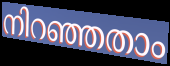
നിറഞ്ഞതാം